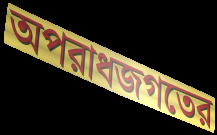
অপরাধজগতের